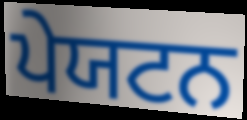
ਪੇਯਟਨ